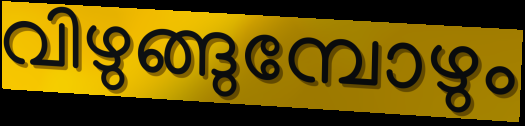
വിഴുങ്ങുമ്പോഴും